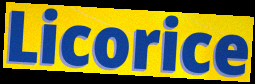
Licorice